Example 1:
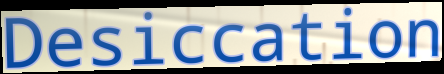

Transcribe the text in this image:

Desiccation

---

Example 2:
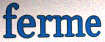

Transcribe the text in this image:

ferme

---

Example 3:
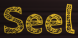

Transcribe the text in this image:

Seel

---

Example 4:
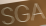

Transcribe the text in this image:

SGA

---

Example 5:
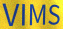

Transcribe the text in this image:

VIMS